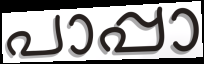
പാപ്പാ